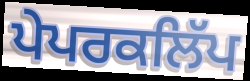
ਪੇਪਰਕਲਿੱਪ